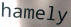
hamely